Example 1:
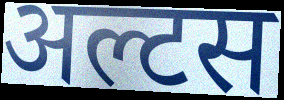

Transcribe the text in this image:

अल्टस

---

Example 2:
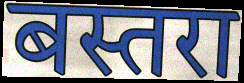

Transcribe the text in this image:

बस्तरा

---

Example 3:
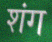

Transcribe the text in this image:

शंग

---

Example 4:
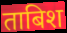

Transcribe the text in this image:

ताबिश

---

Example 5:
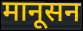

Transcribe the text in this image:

मानूसन